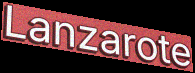
Lanzarote